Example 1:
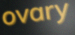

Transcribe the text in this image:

ovary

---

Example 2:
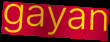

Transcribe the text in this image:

gayan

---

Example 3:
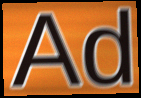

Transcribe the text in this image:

Ad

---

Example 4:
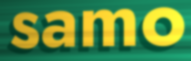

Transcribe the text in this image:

samo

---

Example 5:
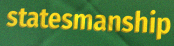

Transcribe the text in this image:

statesmanship